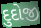
દુદોજી